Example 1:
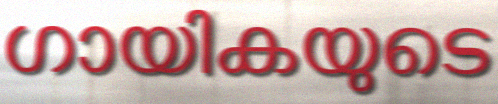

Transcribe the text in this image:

ഗായികയുടെ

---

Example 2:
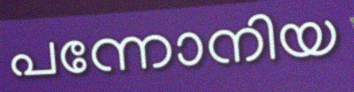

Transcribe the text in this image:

പന്നോനിയ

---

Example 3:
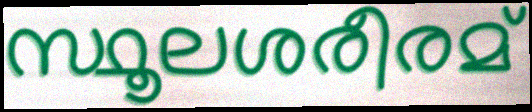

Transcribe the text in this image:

സ്ഥൂലശരീരമ്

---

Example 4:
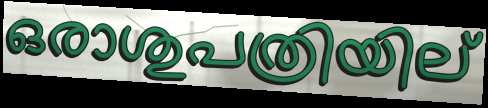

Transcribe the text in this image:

ഒരാശുപത്രിയില്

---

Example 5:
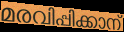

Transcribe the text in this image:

മരവിപ്പിക്കാന്